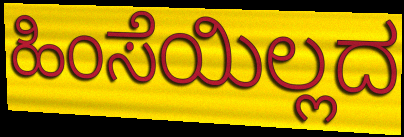
ಹಿಂಸೆಯಿಲ್ಲದ